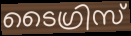
ടൈഗ്രിസ്